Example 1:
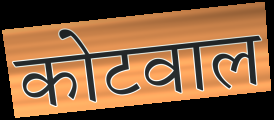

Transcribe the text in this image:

कोटवाल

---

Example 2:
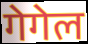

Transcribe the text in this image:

गेगेल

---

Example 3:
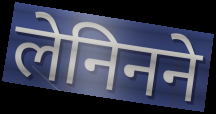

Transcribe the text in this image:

लेनिनने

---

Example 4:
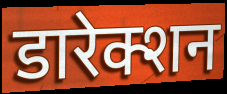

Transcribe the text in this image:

डारेक्शन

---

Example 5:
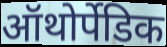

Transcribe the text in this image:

ऑथोर्पेडिक